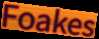
Foakes